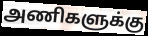
அணிகளுக்கு